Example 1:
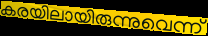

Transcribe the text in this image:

കരയിലായിരുന്നുവെന്ന്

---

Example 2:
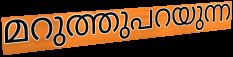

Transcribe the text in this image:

മറുത്തുപറയുന്ന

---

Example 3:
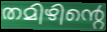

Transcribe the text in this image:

തമിഴിന്റെ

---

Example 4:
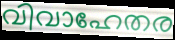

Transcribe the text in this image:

വിവാഹേതര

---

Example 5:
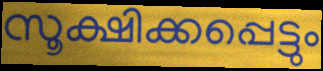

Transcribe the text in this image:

സൂക്ഷിക്കപ്പെട്ടും